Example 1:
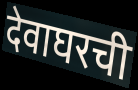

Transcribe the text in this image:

देवाघरची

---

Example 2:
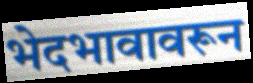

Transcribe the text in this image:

भेदभावावरून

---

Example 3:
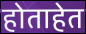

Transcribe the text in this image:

होताहेत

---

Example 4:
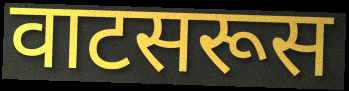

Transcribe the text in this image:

वाटसरूस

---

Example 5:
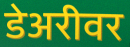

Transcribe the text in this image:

डेअरीवर